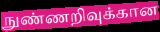
நுண்ணறிவுக்கான